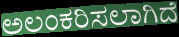
ಅಲಂಕರಿಸಲಾಗಿದೆ